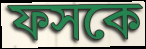
ফসকে